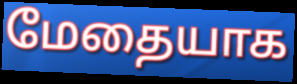
மேதையாக